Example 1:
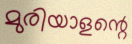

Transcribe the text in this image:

മുരിയാളന്റെ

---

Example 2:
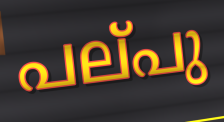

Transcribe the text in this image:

പല്‌പു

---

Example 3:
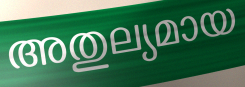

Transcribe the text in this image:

അതുല്യമായ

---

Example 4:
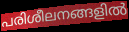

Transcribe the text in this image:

പരിശീലനങ്ങളിൽ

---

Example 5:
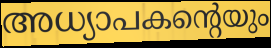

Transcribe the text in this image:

അധ്യാപകന്റെയും